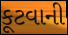
કૂટવાની